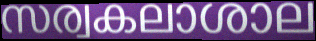
സര്വകലാശാല